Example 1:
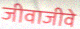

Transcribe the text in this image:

जीवाजीवे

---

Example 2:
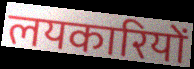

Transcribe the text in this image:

लयकारियों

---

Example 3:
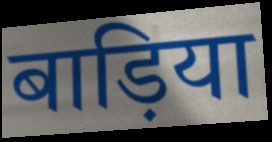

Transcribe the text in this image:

बाड़िया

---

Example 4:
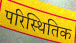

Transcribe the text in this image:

परिस्थितिक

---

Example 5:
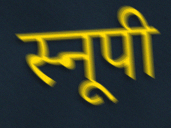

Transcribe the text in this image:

स्नूपी